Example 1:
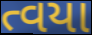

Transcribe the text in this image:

ત્વયા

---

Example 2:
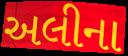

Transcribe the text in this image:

અલીના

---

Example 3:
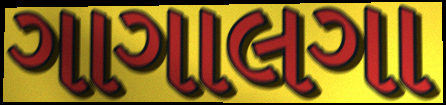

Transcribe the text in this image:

ગાગાલગા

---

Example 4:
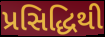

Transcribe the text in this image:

પ્રસિદ્ધિથી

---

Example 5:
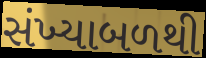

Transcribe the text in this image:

સંખ્યાબળથી